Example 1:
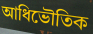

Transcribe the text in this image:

আধিভৌতিক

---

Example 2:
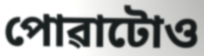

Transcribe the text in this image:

পোৱাটোও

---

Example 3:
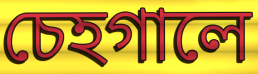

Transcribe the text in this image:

চেহগালে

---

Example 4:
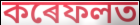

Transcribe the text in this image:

কৰেফলত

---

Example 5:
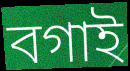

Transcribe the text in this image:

বগাই